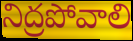
నిద్రపోవాలి